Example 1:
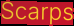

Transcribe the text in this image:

Scarps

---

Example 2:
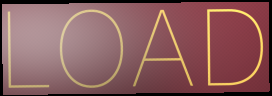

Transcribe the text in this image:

LOAD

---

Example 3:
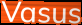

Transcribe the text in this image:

Vasus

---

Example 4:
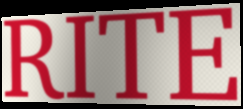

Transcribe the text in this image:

RITE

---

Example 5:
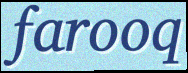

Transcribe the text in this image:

farooq